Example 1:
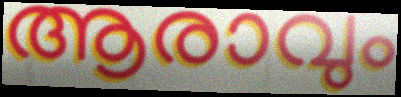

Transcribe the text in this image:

ആരാവും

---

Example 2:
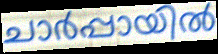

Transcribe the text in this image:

ചാർപ്പായിൽ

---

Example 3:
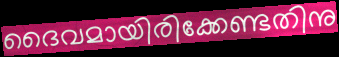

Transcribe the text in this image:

ദൈവമായിരിക്കേണ്ടതിനു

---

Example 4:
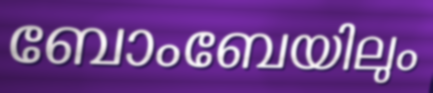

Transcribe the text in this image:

ബോംബേയിലും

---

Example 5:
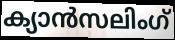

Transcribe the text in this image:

ക്യാൻസലിംഗ്